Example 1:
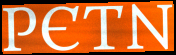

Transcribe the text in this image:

PETN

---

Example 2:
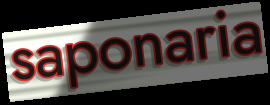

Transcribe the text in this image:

saponaria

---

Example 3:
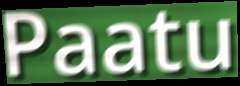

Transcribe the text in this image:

Paatu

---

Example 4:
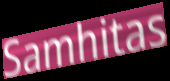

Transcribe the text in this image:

Samhitas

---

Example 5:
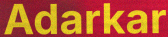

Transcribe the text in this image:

Adarkar